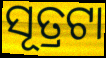
ସୂତ୍ରଟା